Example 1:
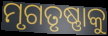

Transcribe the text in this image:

ମୃଗତୃଷ୍ଣାକୁ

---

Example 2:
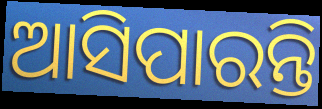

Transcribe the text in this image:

ଆସିପାରନ୍ତି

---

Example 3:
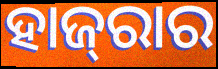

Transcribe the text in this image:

ହାଜ୍‌ରାର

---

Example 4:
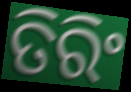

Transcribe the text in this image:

ତିରିଂ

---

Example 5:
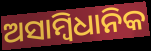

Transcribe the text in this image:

ଅସାମ୍ୱିଧାନିକ